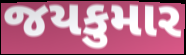
જયકુમાર